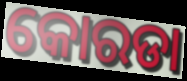
କୋରଡା